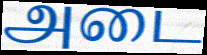
அடை